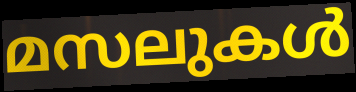
മസലുകൾ